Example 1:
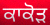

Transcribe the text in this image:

ਕਾਕੋੜ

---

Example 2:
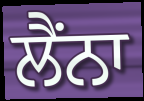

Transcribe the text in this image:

ਲੈਂਨਾ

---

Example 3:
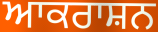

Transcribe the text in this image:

ਆਕਰਾਸ਼ਨ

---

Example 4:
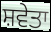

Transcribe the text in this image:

ਸ਼ਵੇਤਾ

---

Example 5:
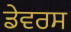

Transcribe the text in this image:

ਡੇਵਰਸ